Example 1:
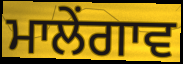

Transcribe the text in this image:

ਮਾਲੇਂਗਾਵ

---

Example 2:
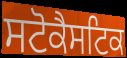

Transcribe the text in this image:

ਸਟੋਕੈਸਟਿਕ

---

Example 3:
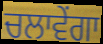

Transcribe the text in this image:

ਚਲਾਵੇਂਗਾ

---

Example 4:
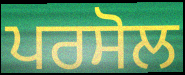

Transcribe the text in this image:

ਪਰਸੋਲ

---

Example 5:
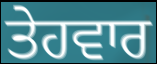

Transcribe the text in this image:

ਤੇਹਵਾਰ